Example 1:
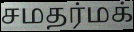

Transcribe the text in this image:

சமதர்மக்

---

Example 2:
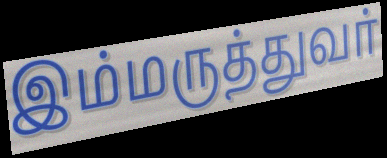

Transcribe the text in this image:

இம்மருத்துவர்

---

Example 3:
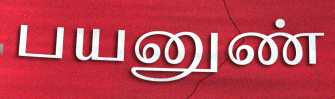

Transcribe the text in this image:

பயனுண்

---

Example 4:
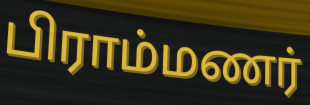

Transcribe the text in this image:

பிராம்மணர்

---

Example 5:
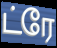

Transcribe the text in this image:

ட்ரே